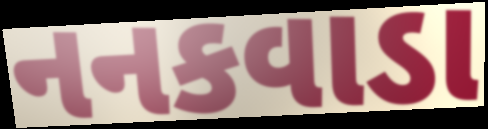
નનકવાડા